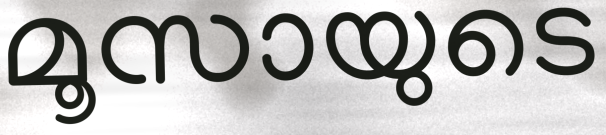
മൂസായുടെ